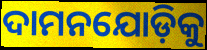
ଦାମନଯୋଡ଼ିକୁ